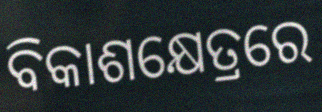
ବିକାଶକ୍ଷେତ୍ରରେ